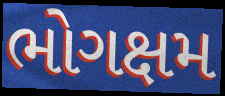
ભોગક્ષમ